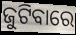
ଜୁଟିବାରେ